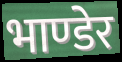
भाण्‍डेर